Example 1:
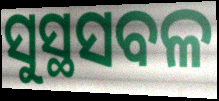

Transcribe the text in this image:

ସୁସ୍ଥସବଳ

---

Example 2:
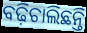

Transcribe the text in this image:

ବଢ଼ିଚାଲିଛନ୍ତି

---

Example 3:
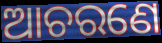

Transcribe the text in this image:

ଆଚରଣେ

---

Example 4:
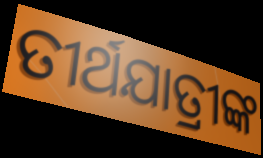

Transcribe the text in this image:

ତୀର୍ଥଯାତ୍ରୀଙ୍କ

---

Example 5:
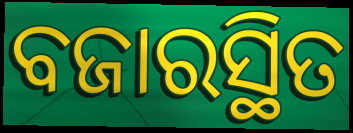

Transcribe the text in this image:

ବଜାରସ୍ଥିତ